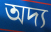
অদ্য